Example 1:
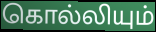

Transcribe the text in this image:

கொல்லியும்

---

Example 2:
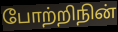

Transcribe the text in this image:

போற்றிநின்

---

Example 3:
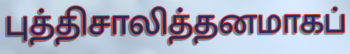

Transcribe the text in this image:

புத்திசாலித்தனமாகப்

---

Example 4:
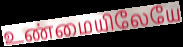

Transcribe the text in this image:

உண்மையிலேயே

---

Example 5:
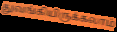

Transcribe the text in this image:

துவங்கியிருக்கலாம்